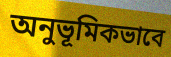
অনুভূমিকভাবে